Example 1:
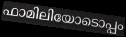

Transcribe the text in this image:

ഫാമിലിയോടൊപ്പം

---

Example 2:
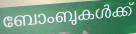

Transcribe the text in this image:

ബോംബുകൾക്ക്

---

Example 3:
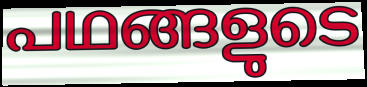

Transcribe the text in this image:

പഥങ്ങളുടെ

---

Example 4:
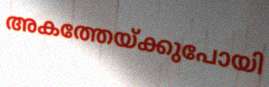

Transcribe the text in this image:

അകത്തേയ്ക്കുപോയി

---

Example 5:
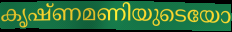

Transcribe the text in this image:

കൃഷ്ണമണിയുടെയോ